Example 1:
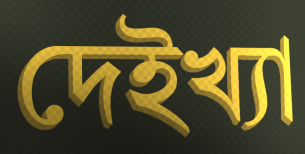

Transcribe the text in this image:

দেইখ্যা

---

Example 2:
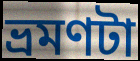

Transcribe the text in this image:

ভ্রমণটা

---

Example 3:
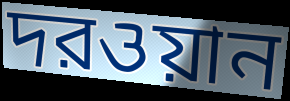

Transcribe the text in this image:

দরওয়ান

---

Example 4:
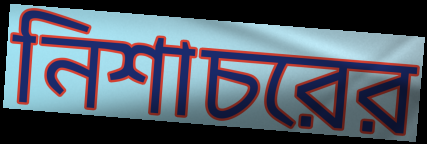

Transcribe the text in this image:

নিশাচরের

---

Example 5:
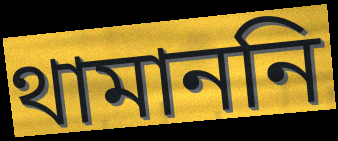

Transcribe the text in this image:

থামাননি